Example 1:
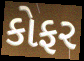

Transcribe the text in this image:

કોફર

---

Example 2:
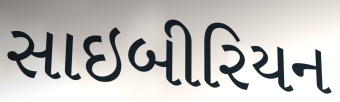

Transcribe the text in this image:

સાઇબીરિયન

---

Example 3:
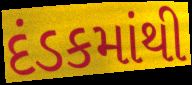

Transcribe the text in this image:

દંડકમાંથી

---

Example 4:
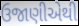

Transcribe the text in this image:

ઉજાણીએથી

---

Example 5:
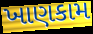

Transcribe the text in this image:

ખાણકામ